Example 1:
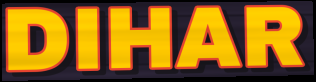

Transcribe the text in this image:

DIHAR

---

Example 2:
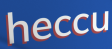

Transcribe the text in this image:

heccu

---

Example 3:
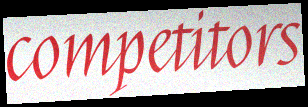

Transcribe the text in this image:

competitors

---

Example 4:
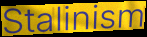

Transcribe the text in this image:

Stalinism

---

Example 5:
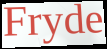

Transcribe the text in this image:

Fryde